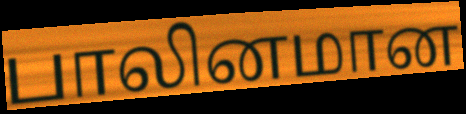
பாலினமான